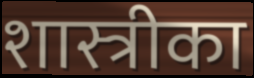
शास्त्रीका